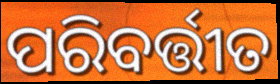
ପରିବର୍ତ୍ତୀତ